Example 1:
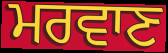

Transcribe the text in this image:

ਮਰਵਾਣ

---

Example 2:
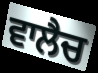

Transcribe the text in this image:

ਵਾਲੈਚ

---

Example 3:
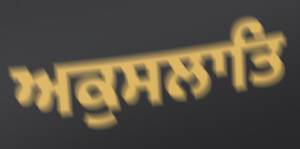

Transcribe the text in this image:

ਅਕੁਸਲਾਤਿ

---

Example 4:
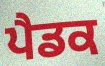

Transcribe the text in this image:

ਪੈਡਕ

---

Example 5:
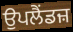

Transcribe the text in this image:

ਉਪਲੈਂਡਜ਼